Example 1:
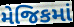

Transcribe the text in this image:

મેજિકમાં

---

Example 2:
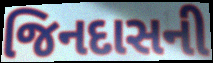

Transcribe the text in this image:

જિનદાસની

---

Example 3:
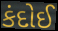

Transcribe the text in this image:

કંદોઈ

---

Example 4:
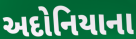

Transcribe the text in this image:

અદોનિયાના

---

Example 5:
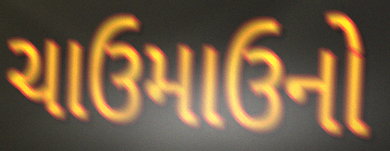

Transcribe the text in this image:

ચાઉમાઉનો